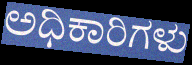
ಅಧಿಕಾರಿಗಳು